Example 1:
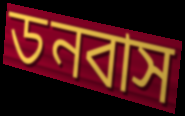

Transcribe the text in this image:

ডনবাস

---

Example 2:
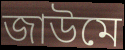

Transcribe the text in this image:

জাউমে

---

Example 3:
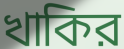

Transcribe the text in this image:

খাকির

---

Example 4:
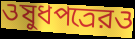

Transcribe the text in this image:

ওষুধপত্রেরও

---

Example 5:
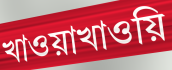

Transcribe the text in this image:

খাওয়াখাওয়ি